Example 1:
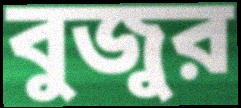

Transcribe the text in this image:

বুজুর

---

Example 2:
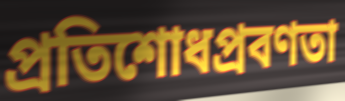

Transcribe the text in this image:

প্রতিশোধপ্রবণতা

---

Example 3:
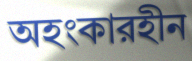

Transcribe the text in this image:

অহংকারহীন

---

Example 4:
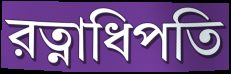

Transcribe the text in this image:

রত্নাধিপতি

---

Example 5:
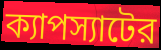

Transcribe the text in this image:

ক্যাপস্যাটের